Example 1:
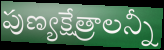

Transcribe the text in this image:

పుణ్యక్షేత్రాలన్నీ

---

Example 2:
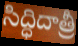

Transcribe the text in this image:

సిద్ధిదాత్రీ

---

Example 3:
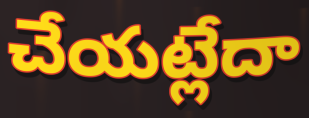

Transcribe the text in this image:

చేయట్లేదా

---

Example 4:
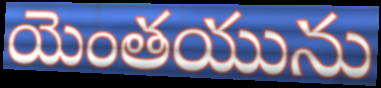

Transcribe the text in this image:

యెంతయును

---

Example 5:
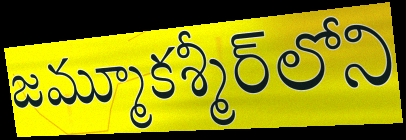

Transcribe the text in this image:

జమ్మూకశ్మీర్‌లోని